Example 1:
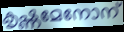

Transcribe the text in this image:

കൃഷ്ണമേനോന്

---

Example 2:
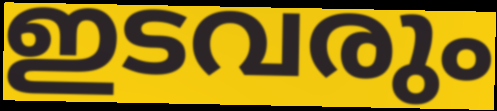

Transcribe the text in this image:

ഇടവരും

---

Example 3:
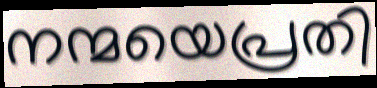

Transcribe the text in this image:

നന്മയെപ്രതി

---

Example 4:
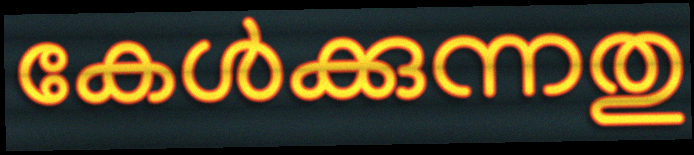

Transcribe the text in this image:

കേൾക്കുന്നതു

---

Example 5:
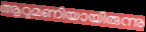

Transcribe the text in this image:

ആറുമണിയായിരുന്നു